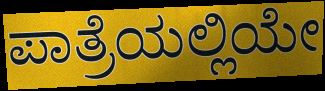
ಪಾತ್ರೆಯಲ್ಲಿಯೇ